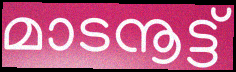
മാടനൂട്ട്